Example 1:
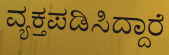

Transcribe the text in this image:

ವ್ಯಕ್ತಪಡಿಸಿದ್ದಾರೆ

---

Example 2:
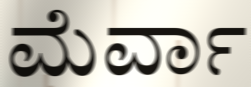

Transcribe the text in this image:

ಮೆರ್ವಾ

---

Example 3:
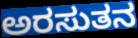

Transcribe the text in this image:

ಅರಸುತನ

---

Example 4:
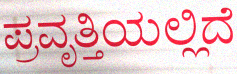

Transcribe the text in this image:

ಪ್ರವೃತ್ತಿಯಲ್ಲಿದೆ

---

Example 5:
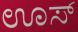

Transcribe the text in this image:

ಊಸ್